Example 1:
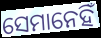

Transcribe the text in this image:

ସେମାନେହିଁ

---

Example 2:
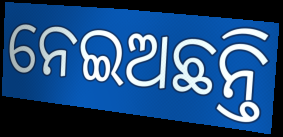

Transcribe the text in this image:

ନେଇଅଛନ୍ତି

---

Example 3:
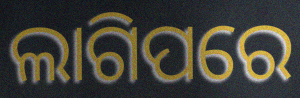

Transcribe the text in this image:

ଲାଗିପରେ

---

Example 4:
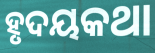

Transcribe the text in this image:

ହୃଦୟକଥା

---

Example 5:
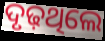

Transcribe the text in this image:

ଦୃଢ଼ଥିଲେ